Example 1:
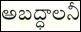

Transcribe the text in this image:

అబద్ధాలనీ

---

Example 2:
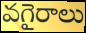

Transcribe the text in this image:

వగైరాలు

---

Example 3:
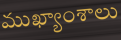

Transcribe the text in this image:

ముఖ్యాంశాలు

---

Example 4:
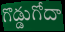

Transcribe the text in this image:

గొడ్డుగోదా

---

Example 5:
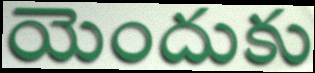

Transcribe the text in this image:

యెందుకు